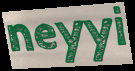
neyyi